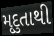
મૃદુતાથી